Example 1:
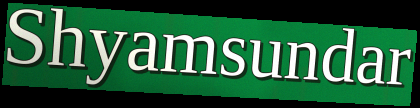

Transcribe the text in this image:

Shyamsundar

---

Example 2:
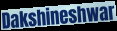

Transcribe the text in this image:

Dakshineshwar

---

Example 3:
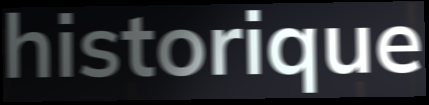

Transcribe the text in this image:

historique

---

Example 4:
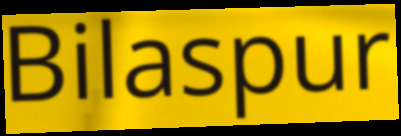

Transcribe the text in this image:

Bilaspur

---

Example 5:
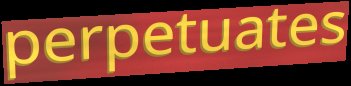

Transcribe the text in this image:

perpetuates